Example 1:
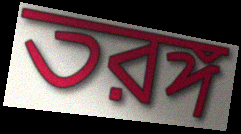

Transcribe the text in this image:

তরঙ্গ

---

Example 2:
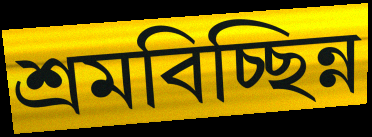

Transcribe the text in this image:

শ্রমবিচ্ছিন্ন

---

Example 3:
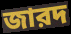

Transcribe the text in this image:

জারদ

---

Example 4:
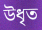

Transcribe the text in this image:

উধৃত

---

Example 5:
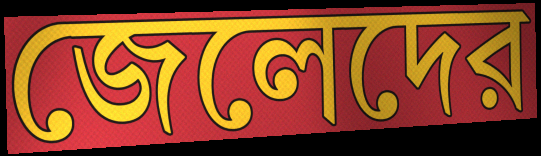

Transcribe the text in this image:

জেলেদের